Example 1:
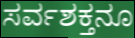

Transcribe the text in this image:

ಸರ್ವಶಕ್ತನೂ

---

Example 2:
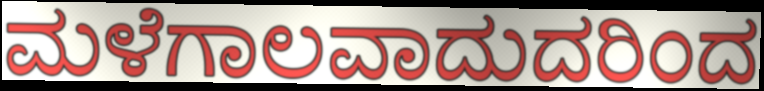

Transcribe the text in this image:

ಮಳೆಗಾಲವಾದುದರಿಂದ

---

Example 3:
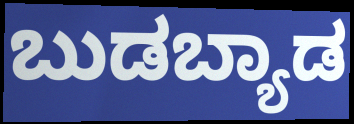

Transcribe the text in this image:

ಬುಡಬ್ಯಾಡ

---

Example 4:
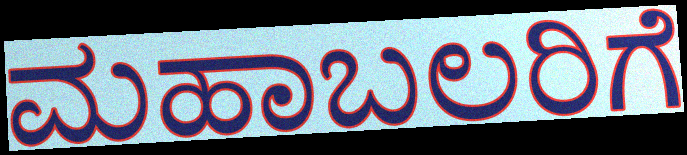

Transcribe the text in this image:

ಮಹಾಬಲರಿಗೆ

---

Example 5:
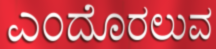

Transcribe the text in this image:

ಎಂದೊರಲುವ